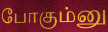
போகும்னு